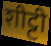
शीट्टी